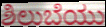
ಶಿಲುಬೆಯು